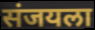
संजयला